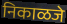
निकाळजे